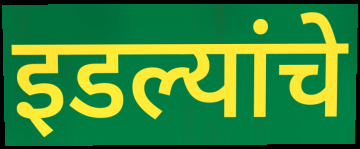
इडल्यांचे